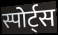
स्पोर्ट्स